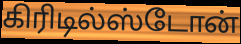
கிரிடில்ஸ்டோன்